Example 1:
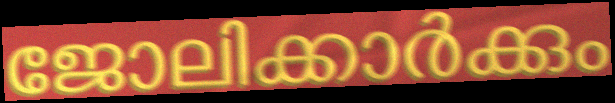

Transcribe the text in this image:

ജോലിക്കാർക്കും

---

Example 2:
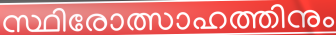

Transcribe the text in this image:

സ്ഥിരോത്സാഹത്തിനും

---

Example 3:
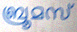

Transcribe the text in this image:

ബ്രൂമസ്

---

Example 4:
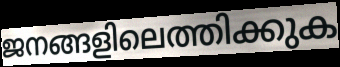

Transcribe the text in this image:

ജനങ്ങളിലെത്തിക്കുക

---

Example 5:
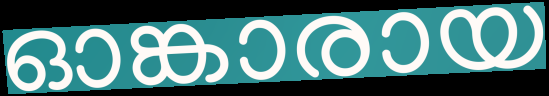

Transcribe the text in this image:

ഓങ്കാരായ